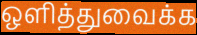
ஒளித்துவைக்க